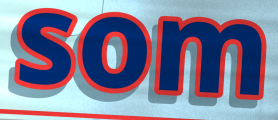
som